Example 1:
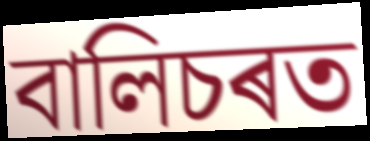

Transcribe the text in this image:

বালিচৰত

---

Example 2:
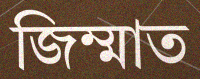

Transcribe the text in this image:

জিম্মাত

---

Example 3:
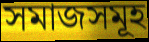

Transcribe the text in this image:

সমাজসমূহ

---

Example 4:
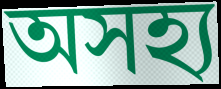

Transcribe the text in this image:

অসহ্য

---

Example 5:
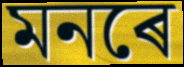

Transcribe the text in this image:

মনৰে